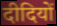
दीदियों